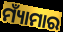
ମ୍ୟାଁମାର